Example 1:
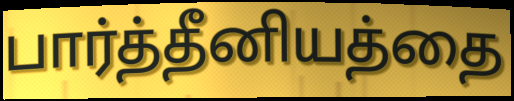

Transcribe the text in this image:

பார்த்தீனியத்தை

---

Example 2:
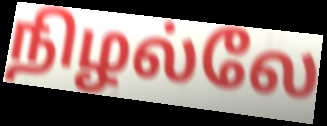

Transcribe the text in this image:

நிழல்லே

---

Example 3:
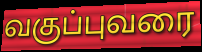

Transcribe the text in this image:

வகுப்புவரை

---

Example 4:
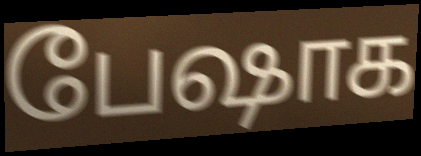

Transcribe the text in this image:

பேஷாக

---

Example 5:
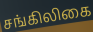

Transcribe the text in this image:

சங்கிலிகை